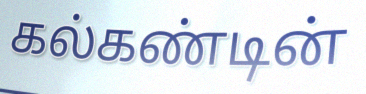
கல்கண்டின்